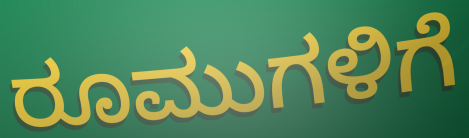
ರೂಮುಗಳಿಗೆ